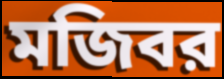
মজিবর